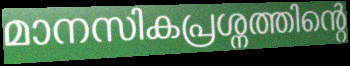
മാനസികപ്രശ്നത്തിന്റെ